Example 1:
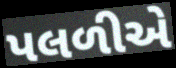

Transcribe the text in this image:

પલળીએ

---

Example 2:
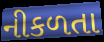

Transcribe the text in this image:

નીકળતા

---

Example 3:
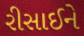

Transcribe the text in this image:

રીસાઈને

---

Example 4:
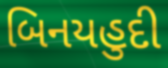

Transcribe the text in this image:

બિનયહુદી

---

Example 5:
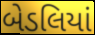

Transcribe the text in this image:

બેડલિયાં